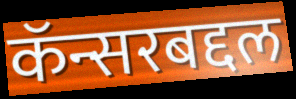
कॅन्सरबद्दल